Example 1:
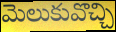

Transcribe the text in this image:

మెలుకువొచ్చి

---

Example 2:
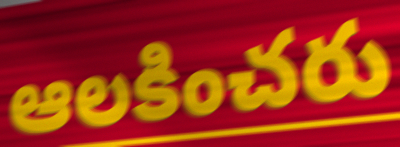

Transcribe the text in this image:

ఆలకించరు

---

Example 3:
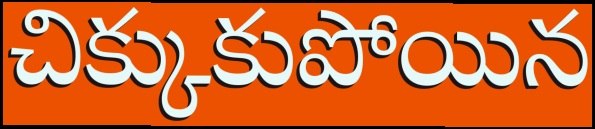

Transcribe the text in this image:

చిక్కుకుపోయిన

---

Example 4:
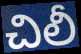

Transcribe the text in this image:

చిలీ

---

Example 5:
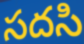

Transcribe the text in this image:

సదసి